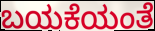
ಬಯಕೆಯಂತೆ